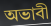
অভাবী